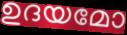
ഉദയമോ